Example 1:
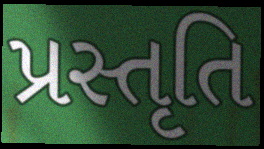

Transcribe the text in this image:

પ્રસ્તૃતિ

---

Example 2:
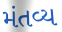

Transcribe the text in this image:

મંતવ્ય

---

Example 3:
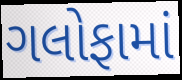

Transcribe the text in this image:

ગલોફામાં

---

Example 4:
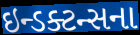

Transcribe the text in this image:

ઇન્ડક્ટન્સના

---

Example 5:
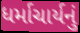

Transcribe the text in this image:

ધર્માચાર્યનું